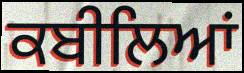
ਕਬੀਲਿਆਂ